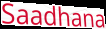
Saadhana